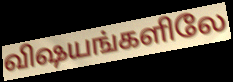
விஷயங்களிலே